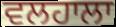
ਵਲਹਾਲਾ